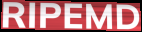
RIPEMD